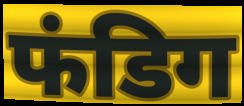
फंडिग